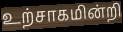
உற்சாகமின்றி